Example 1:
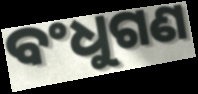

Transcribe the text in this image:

ବଂଧୁଗଣ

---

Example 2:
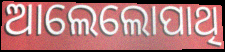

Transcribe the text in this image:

ଆଲେଲୋପାଥି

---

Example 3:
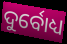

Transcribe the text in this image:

ଦୁର୍ବୋଧ୍ୟ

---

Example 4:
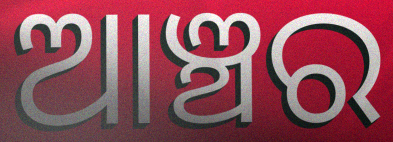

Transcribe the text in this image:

ଆଞ୍ଚର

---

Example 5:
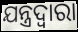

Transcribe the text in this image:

ଯନ୍ତ୍ରଦ୍ବାରା